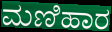
ಮಣಿಹಾರ